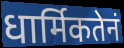
धार्मिकतेनं